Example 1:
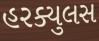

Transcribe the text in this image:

હરક્યુલસ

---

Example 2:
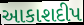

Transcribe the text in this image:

આકાશદીપ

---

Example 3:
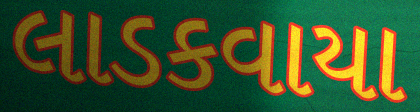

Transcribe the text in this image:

લાડકવાયા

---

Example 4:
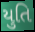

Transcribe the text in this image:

યુતિ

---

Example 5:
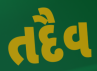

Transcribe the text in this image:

તદૈવ